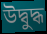
উদ্বুদ্ধ